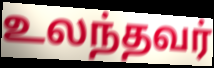
உலந்தவர்